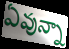
ఏవున్నా